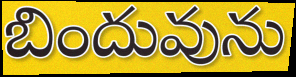
బిందువును